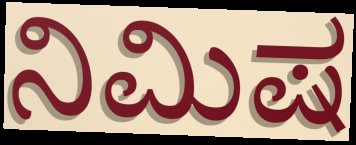
ನಿಮಿಷ